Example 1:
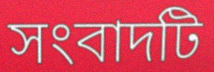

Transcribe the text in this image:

সংবাদটি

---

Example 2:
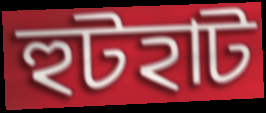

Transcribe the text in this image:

হুটহাট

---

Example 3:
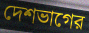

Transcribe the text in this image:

দেশভাগের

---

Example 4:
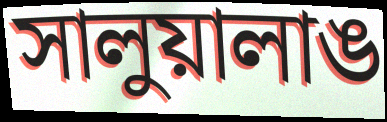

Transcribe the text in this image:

সালুয়ালাঙ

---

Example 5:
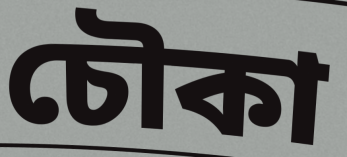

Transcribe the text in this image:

চৌকা